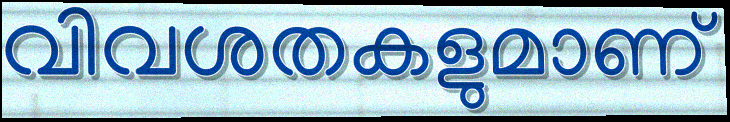
വിവശതകളുമാണ്